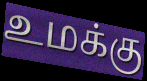
உமக்கு